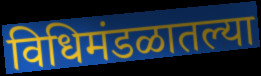
विधिमंडळातल्या